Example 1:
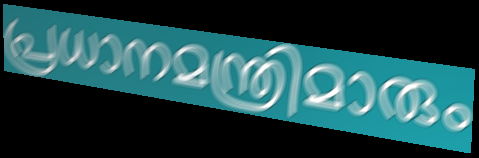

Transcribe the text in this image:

പ്രധാനമന്ത്രിമാരും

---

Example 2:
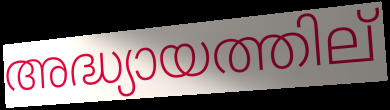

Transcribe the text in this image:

അദ്ധ്യായത്തില്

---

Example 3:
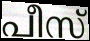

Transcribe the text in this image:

പീസ്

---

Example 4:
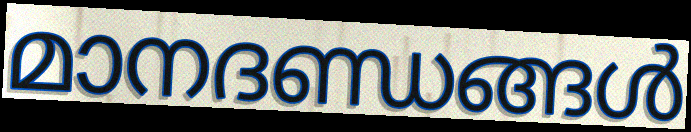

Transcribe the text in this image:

മാനദണ്ഡങ്ങൾ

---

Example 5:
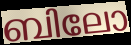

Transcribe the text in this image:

ബിലോ